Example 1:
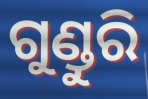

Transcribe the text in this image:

ଗୁଣ୍ଡୁରି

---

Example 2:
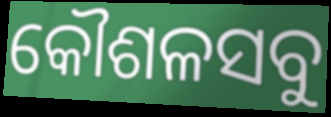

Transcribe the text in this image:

କୌଶଳସବୁ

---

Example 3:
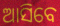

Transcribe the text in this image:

ଆସିବେ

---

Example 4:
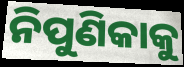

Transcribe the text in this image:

ନିପୁଣିକାକୁ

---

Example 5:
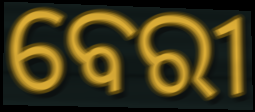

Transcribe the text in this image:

ବେରୀ